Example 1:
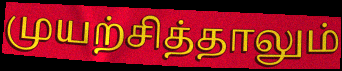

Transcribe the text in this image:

முயற்சித்தாலும்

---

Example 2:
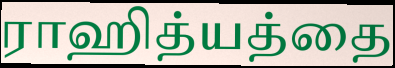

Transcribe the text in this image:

ராஹித்யத்தை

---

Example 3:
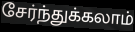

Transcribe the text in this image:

சேர்ந்துக்கலாம்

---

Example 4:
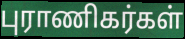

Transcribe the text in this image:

புராணிகர்கள்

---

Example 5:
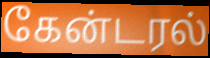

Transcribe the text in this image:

கேன்டரல்